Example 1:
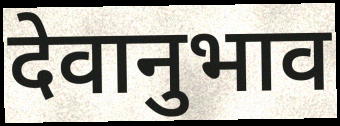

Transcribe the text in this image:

देवानुभाव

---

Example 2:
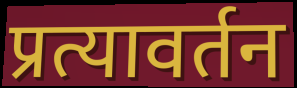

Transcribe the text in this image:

प्रत्यावर्तन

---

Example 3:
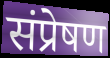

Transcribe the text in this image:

संप्रेषण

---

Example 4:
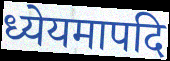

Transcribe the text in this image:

ध्येयमापदि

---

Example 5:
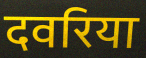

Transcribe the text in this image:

दवरिया